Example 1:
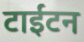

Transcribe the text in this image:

टाईटन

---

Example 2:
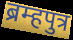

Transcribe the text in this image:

ब्रम्हपुत्र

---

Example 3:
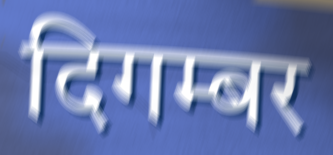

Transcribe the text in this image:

दिगम्बर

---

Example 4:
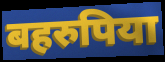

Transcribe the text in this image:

बहरुपिया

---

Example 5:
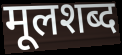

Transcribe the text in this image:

मूलशब्द